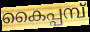
കൈപ്പമ്പ്